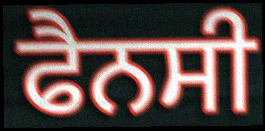
ਫੈਨਸੀ